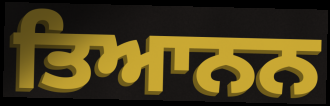
ਤਿਆਨਨ